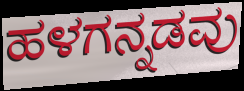
ಹಳಗನ್ನಡವು